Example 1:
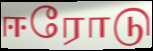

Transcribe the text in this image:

ஈரோடு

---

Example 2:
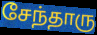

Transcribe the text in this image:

சேந்தாரு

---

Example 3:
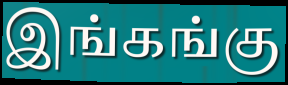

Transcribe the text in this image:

இங்கங்கு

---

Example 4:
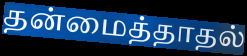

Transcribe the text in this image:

தன்மைத்தாதல்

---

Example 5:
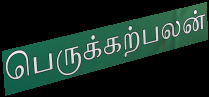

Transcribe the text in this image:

பெருக்கற்பலன்